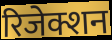
रिजेक्शन